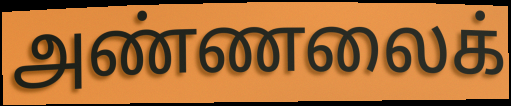
அண்ணலைக்